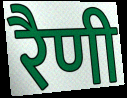
रैणी